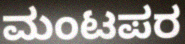
ಮಂಟಪರ